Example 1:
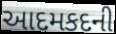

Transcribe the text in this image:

આદમકદની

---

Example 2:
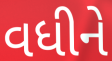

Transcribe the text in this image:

વધીને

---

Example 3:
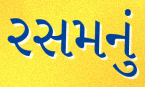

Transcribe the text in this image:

રસમનું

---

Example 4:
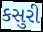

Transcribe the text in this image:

કસુરી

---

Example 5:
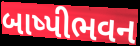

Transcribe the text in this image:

બાષ્પીભવન